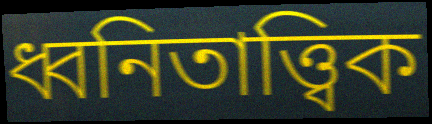
ধ্বনিতাত্ত্বিক